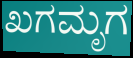
ಖಗಮೃಗ